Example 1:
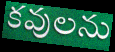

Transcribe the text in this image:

కవులను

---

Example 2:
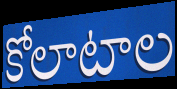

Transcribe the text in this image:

కోలాటాల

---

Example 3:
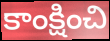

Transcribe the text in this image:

కాంక్షించి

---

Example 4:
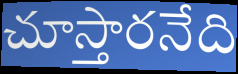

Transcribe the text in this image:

చూస్తారనేది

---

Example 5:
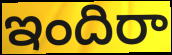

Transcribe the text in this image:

ఇందిరా